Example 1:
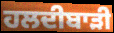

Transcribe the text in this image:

ਹਲਦੀਬਾੜੀ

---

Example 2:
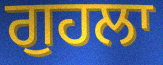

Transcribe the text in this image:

ਗੁਹਲਾ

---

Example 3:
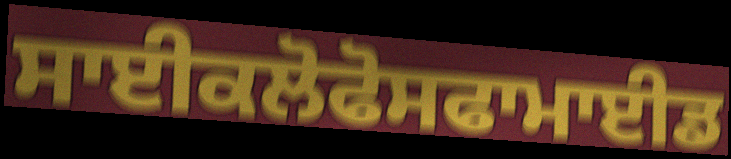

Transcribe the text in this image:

ਸਾਈਕਲੋਫੋਸਫਾਮਾਈਡ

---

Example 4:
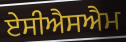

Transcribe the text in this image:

ਏਸੀਐਸਐਮ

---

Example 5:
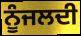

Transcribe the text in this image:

ਨੂੰਜਲਦੀ